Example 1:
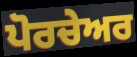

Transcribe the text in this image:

ਪੋਰਚੇਅਰ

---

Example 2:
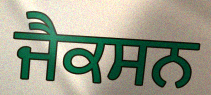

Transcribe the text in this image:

ਜੈਕਸਨ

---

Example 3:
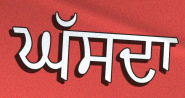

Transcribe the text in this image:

ਘੱਸਦਾ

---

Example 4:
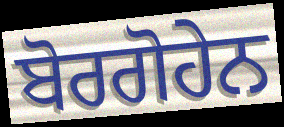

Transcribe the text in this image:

ਬੋਰਗੋਹੇਨ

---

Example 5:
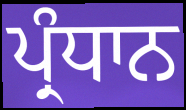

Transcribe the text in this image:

ਪ੍ਰੰਧਾਨ